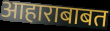
आहाराबाबत